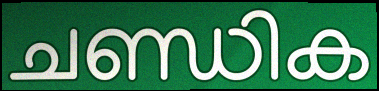
ചണ്ഡിക